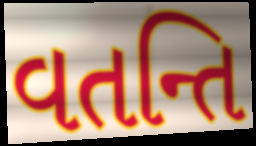
વતન્તિ